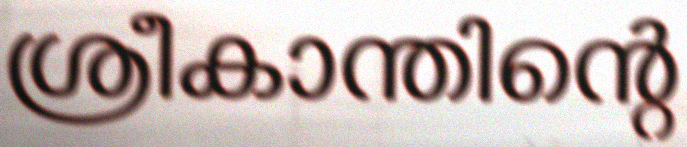
ശ്രീകാന്തിന്റെ